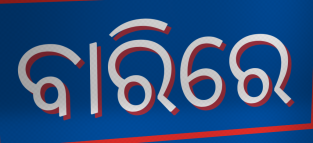
ବାରିରେ